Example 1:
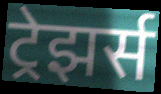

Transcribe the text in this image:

ट्रेझर्स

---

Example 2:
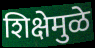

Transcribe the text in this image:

शिक्षेमुळे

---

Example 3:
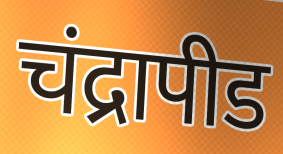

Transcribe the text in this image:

चंद्रापीड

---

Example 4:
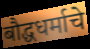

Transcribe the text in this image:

बौद्धधर्माचे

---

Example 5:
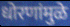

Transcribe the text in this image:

धोरणांमुळे